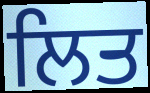
ਲਿਤ